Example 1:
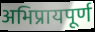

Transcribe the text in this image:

अभिप्रायपूर्ण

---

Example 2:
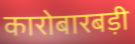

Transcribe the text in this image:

कारोबारबड़ी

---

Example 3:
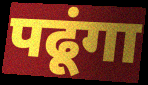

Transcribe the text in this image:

पढूंगा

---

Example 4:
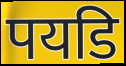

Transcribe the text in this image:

पयडि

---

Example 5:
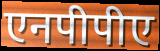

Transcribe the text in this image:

एनपीपीए